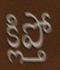
క్లిప్తో